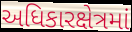
અધિકારક્ષેત્રમાં